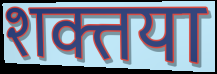
शक्तया